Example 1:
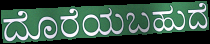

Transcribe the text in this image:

ದೊರೆಯಬಹುದೆ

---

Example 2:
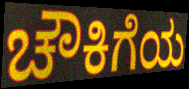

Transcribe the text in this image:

ಚೌಕಿಗೆಯ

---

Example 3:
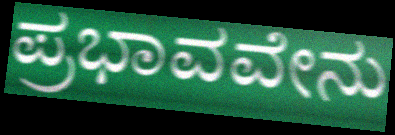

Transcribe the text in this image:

ಪ್ರಭಾವವೇನು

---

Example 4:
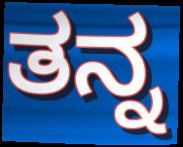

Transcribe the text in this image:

ತನ್ನ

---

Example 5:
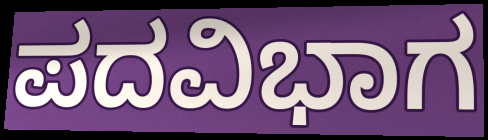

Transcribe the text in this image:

ಪದವಿಭಾಗ